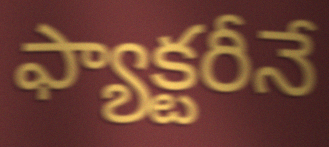
ఫ్యాక్టరీనే